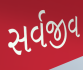
સર્વજીવ